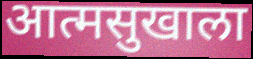
आत्मसुखाला